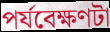
পর্যবেক্ষণটা